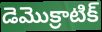
డెమొక్రాటిక్